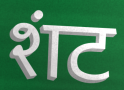
शंट